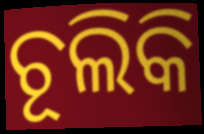
ଚୂଲିକି